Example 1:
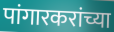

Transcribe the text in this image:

पांगारकरांच्या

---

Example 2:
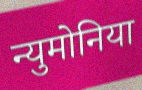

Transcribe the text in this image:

न्युमोनिया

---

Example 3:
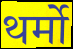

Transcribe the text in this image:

थर्मो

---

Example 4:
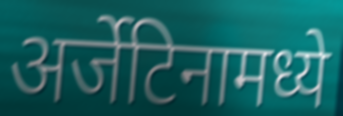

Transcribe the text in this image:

अर्जेटिनामध्ये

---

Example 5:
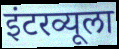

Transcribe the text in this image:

इंटरव्यूला